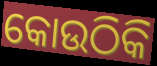
କୋଉଠିକି